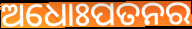
ଅଧୋଃପତନର